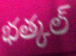
భత్కల్